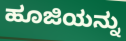
ಹೂಜಿಯನ್ನು